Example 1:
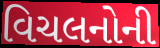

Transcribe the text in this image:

વિચલનોની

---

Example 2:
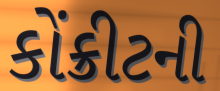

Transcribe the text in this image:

કોંક્રીટની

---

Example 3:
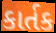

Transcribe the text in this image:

કાર્તક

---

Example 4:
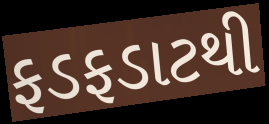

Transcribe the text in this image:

ફડફડાટથી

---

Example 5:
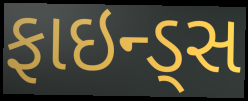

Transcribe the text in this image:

ફાઇન્ડ્સ